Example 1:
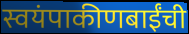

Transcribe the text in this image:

स्वयंपाकीणबाईंची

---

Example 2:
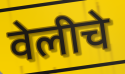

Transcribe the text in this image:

वेलीचे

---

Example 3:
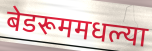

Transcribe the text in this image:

बेडरूममधल्या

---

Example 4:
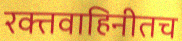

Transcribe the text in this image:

रक्तवाहिनीतच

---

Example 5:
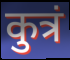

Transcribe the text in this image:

कुत्रं